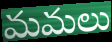
మమలు